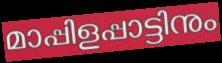
മാപ്പിളപ്പാട്ടിനും